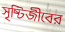
সৃষ্টিজীবের